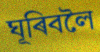
ঘূৰিবলৈ